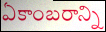
ఏకాంబరాన్ని